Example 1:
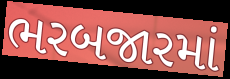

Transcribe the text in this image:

ભરબજારમાં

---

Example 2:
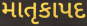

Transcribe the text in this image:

માતૃકાપદ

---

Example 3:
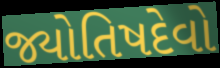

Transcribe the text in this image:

જ્યોતિષદેવો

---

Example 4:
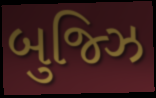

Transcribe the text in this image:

બુજ્ઝિ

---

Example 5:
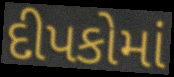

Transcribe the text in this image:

દીપકોમાં